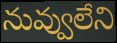
నువ్వులేని